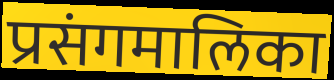
प्रसंगमालिका